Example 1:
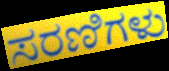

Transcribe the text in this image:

ಸರಣಿಗಳು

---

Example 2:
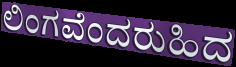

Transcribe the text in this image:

ಲಿಂಗವೆಂದರುಹಿದ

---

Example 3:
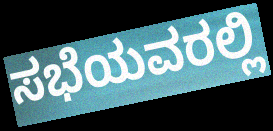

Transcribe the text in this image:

ಸಭೆಯವರಲ್ಲಿ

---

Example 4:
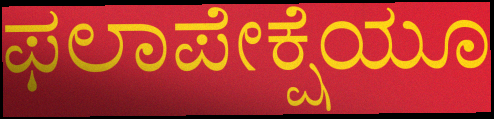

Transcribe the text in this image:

ಫಲಾಪೇಕ್ಷೆಯೂ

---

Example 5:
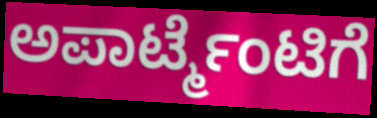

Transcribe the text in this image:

ಅಪಾರ್ಟ್ಮೆಂಟಿಗೆ